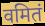
वमितं